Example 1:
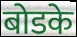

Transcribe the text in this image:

बोडके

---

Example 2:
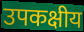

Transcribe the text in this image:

उपकक्षीय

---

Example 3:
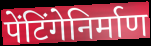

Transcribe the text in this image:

पेंटिंगेनिर्माण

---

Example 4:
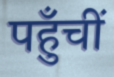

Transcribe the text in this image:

पहुँचीं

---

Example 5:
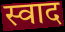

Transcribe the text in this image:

स्‍वाद